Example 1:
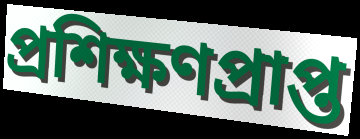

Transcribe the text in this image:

প্ৰশিক্ষণপ্ৰাপ্ত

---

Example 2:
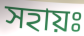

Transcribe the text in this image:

সহায়ঃ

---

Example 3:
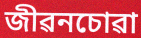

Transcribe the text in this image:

জীৱনচোৱা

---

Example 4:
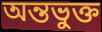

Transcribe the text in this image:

অন্তভুক্ত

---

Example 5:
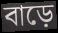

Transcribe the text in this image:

বাড়ে